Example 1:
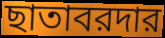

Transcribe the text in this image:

ছাতাবরদার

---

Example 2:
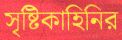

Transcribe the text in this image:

সৃষ্টিকাহিনির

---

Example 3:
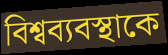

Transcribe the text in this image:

বিশ্বব্যবস্থাকে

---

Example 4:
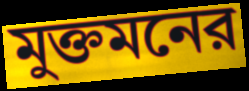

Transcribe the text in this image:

মুক্তমনের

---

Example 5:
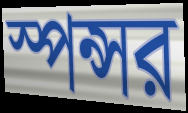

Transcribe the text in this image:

স্পন্সর